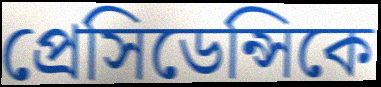
প্রেসিডেন্সিকে